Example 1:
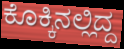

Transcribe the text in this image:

ಕೊಕ್ಕಿನಲ್ಲಿದ್ದ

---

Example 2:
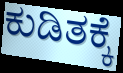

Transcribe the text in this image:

ಕುಡಿತಕ್ಕೆ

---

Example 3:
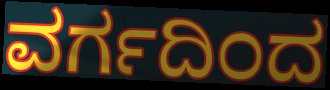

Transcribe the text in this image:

ವರ್ಗದಿಂದ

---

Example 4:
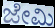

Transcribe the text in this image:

ಜೇಮಿ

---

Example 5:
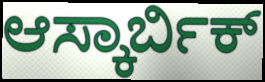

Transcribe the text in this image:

ಆಸ್ಕಾರ್ಬಿಕ್